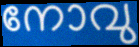
നോവു